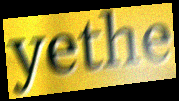
yethe